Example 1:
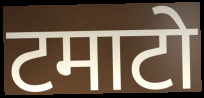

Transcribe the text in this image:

टमाटो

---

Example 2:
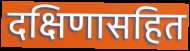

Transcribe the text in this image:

दक्षिणासहित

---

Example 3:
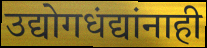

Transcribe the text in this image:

उद्योगधंद्यांनाही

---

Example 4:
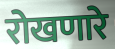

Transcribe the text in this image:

रोखणारे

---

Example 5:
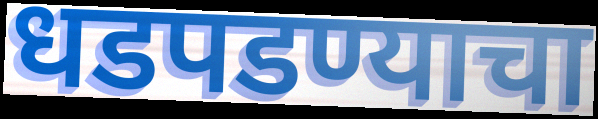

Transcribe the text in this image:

धडपडण्याचा